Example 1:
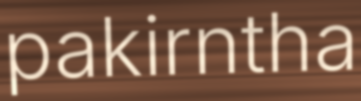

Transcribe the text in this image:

pakirntha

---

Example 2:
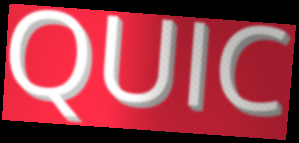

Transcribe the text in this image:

QUIC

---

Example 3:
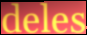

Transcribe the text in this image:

deles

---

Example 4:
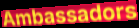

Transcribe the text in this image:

Ambassadors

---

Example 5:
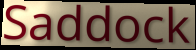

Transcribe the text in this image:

Saddock